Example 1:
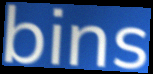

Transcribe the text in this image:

bins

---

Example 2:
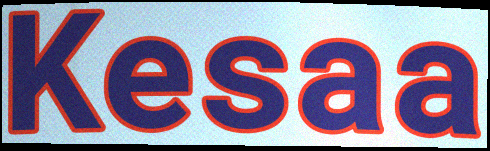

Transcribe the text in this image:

Kesaa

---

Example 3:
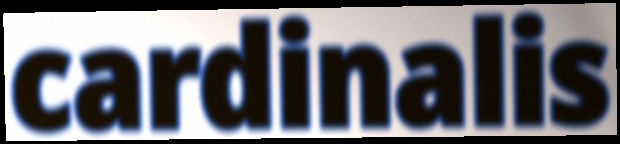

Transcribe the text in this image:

cardinalis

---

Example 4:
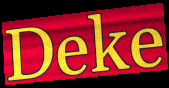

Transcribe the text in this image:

Deke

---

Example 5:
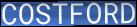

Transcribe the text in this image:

COSTFORD